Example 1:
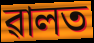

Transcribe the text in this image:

ৱালত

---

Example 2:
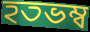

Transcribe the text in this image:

হতভম্ব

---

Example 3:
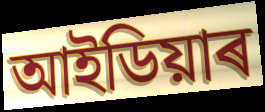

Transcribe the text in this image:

আইডিয়াৰ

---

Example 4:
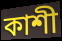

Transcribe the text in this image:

কাশী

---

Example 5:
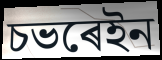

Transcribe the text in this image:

চভৰেইন